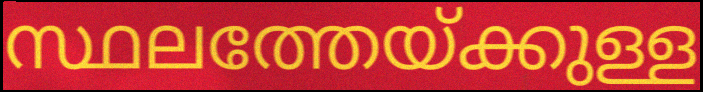
സ്ഥലത്തേയ്ക്കുള്ള